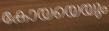
കോയയെയും